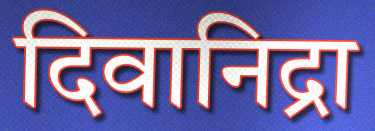
दिवानिद्रा